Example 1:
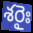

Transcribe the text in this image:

శరైః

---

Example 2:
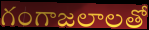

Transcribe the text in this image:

గంగాజలాలతో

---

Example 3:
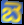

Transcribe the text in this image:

బె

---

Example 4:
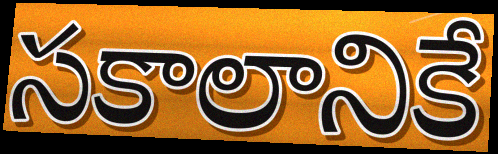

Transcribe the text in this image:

సకాలానికే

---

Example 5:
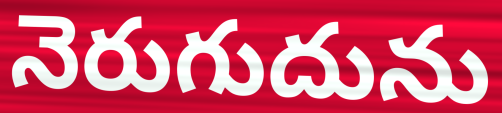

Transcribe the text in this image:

నెరుగుదును